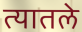
त्‍यातले